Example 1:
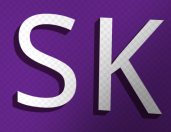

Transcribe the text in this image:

SK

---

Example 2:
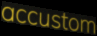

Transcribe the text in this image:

accustom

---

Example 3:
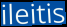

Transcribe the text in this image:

ileitis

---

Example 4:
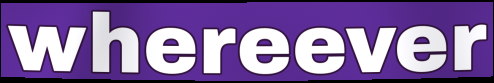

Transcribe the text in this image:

whereever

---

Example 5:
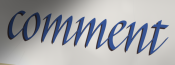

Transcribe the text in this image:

comment